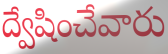
ద్వేషించేవారు